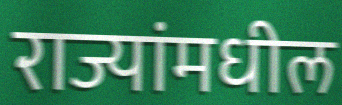
राज्यांमधील